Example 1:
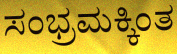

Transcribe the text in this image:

ಸಂಭ್ರಮಕ್ಕಿಂತ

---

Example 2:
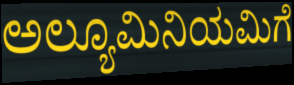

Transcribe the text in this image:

ಅಲ್ಯೂಮಿನಿಯಮಿಗೆ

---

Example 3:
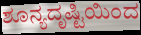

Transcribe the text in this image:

ಶೂನ್ಯದೃಷ್ಟಿಯಿಂದ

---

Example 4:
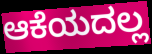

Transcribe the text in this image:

ಆಕೆಯದಲ್ಲ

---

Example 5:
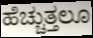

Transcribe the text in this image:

ಹೆಚ್ಚುತ್ತಲೂ